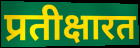
प्रतीक्षारत